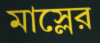
মাস্লের